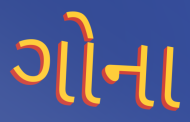
ગોના